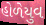
હોળેયુવ